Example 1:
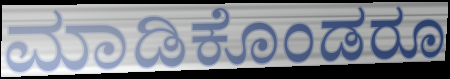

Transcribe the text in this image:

ಮಾಡಿಕೊಂಡರೂ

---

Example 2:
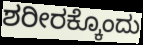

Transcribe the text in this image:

ಶರೀರಕ್ಕೊಂದು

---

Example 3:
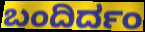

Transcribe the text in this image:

ಬಂದಿರ್ದಂ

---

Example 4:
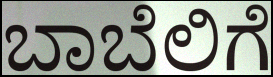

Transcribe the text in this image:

ಬಾಬೆಲಿಗೆ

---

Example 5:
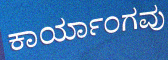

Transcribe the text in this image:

ಕಾರ್ಯಾಂಗವು